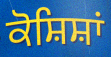
ਕੋਸ਼ਿਸ਼ਾਂ